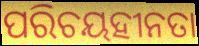
ପରିଚୟହୀନତା